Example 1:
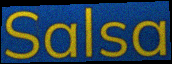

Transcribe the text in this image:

Salsa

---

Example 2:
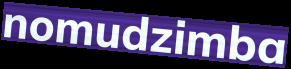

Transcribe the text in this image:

nomudzimba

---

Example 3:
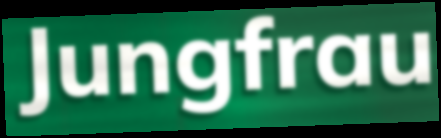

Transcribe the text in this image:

Jungfrau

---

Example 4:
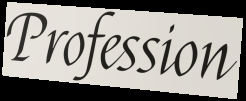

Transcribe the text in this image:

Profession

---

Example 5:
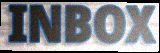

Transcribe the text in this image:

INBOX